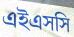
এইএসসি